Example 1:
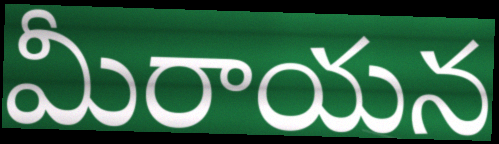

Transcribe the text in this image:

మీరాయన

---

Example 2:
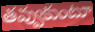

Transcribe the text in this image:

తవ్వుకుంటూ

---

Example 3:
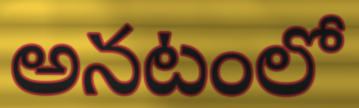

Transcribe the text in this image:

అనటంలో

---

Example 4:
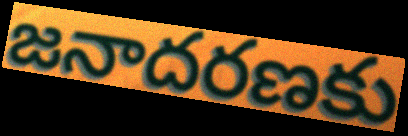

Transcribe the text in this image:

జనాదరణకు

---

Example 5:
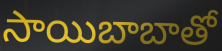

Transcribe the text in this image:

సాయిబాబాతో